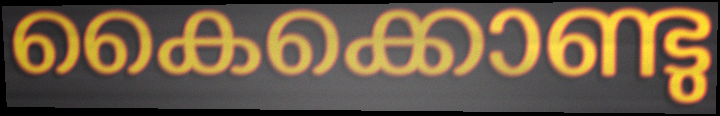
കൈക്കൊണ്ടു